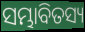
ସମ୍ଭାବିତସ୍ୟ